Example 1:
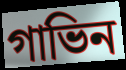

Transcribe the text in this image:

গাভিন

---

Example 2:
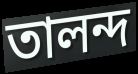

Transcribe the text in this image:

তালন্দ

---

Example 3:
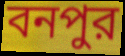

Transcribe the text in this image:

বনপুর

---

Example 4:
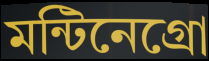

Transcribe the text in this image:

মন্টিনেগ্রো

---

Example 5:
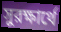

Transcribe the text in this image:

সুরক্ষার্থে